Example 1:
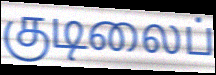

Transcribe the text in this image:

குடிலைப்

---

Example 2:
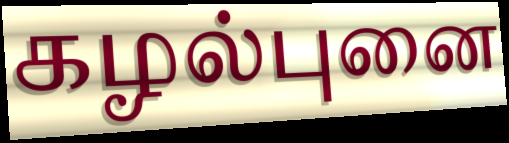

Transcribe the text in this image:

கழல்புனை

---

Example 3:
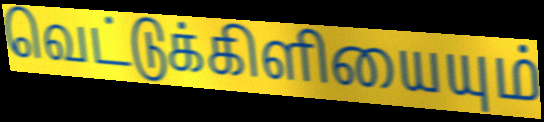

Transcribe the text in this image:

வெட்டுக்கிளியையும்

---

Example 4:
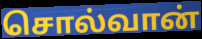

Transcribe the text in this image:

சொல்வான்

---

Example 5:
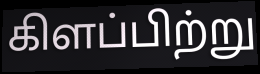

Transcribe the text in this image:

கிளப்பிற்று